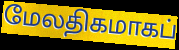
மேலதிகமாகப்